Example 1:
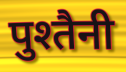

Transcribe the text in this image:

पुश्तैनी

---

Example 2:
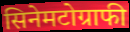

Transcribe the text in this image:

सिनेमटोग्राफी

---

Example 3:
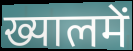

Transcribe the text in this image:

ख्यालमें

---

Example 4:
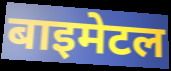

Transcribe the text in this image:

बाइमेटल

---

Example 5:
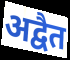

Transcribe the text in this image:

अद्वैत